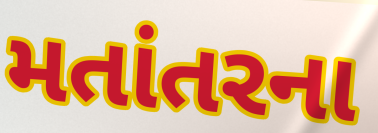
મતાંતરના